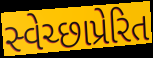
સ્વેચ્છાપ્રેરિત